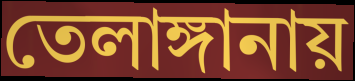
তেলাঙ্গানায়